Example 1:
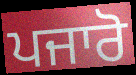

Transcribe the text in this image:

ਪਜਾਰੋ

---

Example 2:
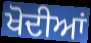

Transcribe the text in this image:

ਖੋਦੀਆਂ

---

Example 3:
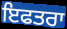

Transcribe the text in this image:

ਇਫਤਰਾ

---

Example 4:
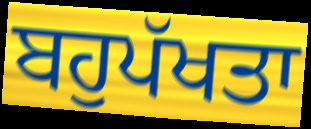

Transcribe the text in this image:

ਬਹੁਪੱਖਤਾ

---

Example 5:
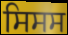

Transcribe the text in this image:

ਸਿਸਸ